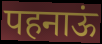
पहनाऊं